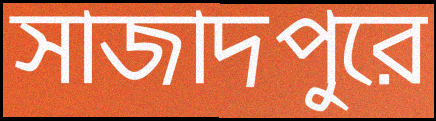
সাজাদপুরে